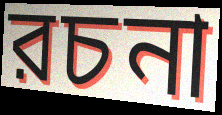
রচনা